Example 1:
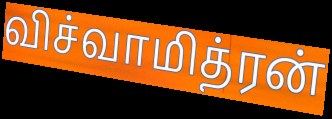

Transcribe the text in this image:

விச்வாமித்ரன்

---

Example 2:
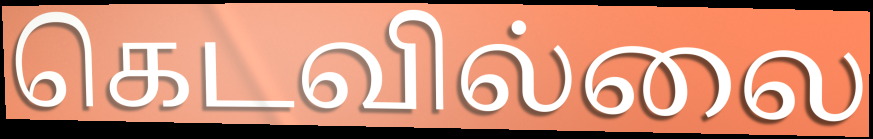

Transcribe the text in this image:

கெடவில்லை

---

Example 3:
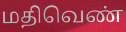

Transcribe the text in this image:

மதிவெண்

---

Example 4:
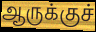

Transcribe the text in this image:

ஆருக்குச்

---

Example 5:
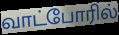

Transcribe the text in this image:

வாட்போரில்